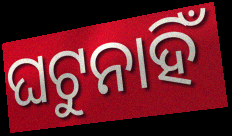
ଘଟୁନାହିଁ